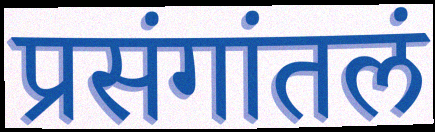
प्रसंगांतलं